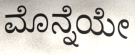
ಮೊನ್ನೆಯೇ